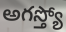
అగస్త్యో